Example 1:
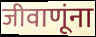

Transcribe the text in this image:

जीवाणूंना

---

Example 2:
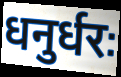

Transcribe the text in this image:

धनुर्धरः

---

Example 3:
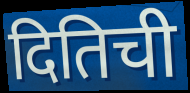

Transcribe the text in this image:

दितिची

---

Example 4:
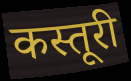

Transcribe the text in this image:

कस्तूरी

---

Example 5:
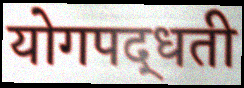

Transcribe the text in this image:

योगपद्धती